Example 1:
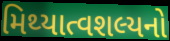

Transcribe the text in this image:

મિથ્યાત્વશલ્યનો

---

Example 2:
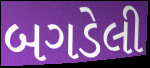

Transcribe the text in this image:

બગડેલી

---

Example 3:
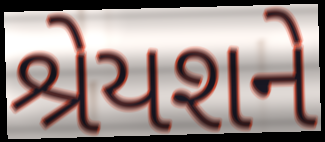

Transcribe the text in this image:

શ્રેયશને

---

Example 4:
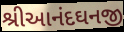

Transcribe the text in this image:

શ્રીઆનંદઘનજી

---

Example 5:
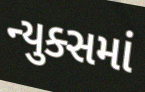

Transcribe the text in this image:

ન્યુક્સમાં